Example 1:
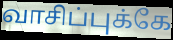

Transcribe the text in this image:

வாசிப்புக்கே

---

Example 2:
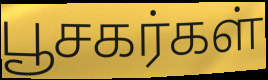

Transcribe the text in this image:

பூசகர்கள்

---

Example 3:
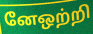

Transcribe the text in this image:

னேஒற்றி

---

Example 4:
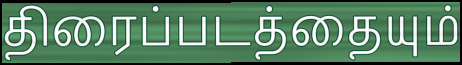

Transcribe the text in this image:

திரைப்படத்தையும்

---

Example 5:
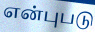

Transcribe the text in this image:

என்புபடு